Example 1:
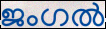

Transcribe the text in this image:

ജംഗൽ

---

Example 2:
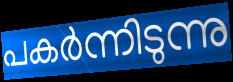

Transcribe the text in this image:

പകർന്നിടുന്നു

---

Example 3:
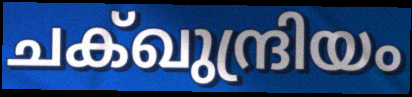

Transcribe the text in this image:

ചക്ഖുന്ദ്രിയം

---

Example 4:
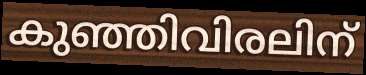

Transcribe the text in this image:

കുഞ്ഞിവിരലിന്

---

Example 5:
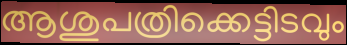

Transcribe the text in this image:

ആശുപത്രിക്കെട്ടിടവും